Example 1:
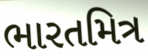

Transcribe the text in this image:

ભારતમિત્ર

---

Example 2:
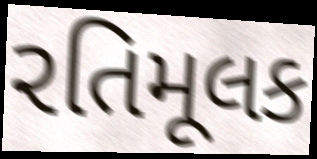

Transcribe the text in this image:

રતિમૂલક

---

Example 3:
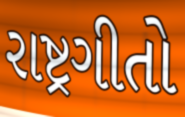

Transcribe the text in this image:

રાષ્ટ્રગીતો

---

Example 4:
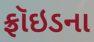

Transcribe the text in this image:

ફ્રૉઇડના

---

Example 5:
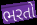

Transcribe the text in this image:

ભરતો